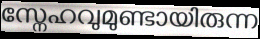
സ്നേഹവുമുണ്ടായിരുന്ന